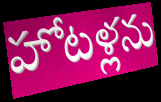
హోటళ్లను